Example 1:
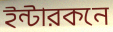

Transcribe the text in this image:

ইন্টারকনে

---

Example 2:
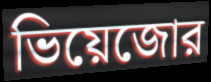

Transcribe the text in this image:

ভিয়েজোর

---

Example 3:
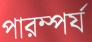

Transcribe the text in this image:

পারম্পর্য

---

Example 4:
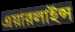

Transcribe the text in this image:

এয়ারলাইন্স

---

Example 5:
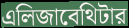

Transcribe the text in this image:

এলিজাবেথিটার